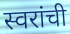
स्वरांची